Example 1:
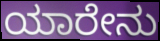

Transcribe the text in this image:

ಯಾರೇನು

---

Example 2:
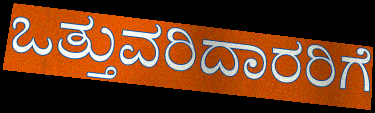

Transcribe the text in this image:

ಒತ್ತುವರಿದಾರರಿಗೆ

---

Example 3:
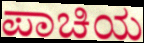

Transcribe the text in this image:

ಪಾಚಿಯ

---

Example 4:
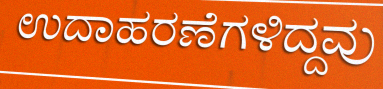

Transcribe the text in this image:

ಉದಾಹರಣೆಗಳಿದ್ದವು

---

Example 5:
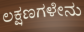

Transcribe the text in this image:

ಲಕ್ಷಣಗಳೇನು